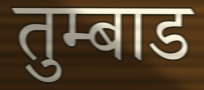
तुम्बाड